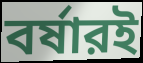
বর্ষারই